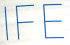
IFE